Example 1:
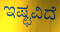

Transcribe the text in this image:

ಇಷ್ಟವಿದೆ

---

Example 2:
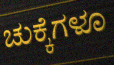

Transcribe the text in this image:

ಚುಕ್ಕೆಗಳೂ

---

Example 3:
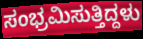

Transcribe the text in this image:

ಸಂಭ್ರಮಿಸುತ್ತಿದ್ದಳು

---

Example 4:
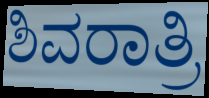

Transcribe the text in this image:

ಶಿವರಾತ್ರಿ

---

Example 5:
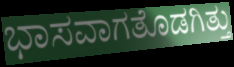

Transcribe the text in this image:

ಭಾಸವಾಗತೊಡಗಿತ್ತು